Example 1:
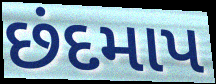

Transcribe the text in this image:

છંદમાપ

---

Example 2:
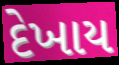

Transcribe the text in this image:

દેખાય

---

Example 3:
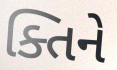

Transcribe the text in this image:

ક્તિને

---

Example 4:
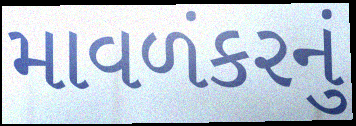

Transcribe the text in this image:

માવળંકરનું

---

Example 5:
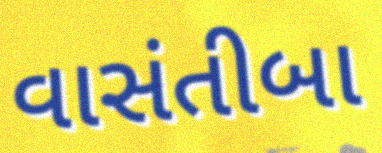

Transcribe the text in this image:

વાસંતીબા